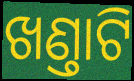
ଖଣ୍ତାଟି